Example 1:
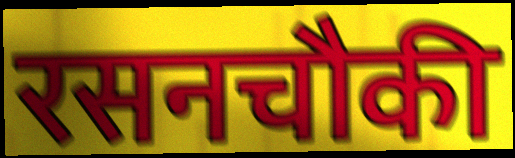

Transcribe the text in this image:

रसनचौकी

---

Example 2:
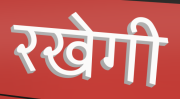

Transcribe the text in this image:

रखेगी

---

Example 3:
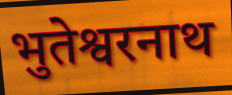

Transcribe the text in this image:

भुतेश्वरनाथ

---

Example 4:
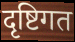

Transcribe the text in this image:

दृष्टिगत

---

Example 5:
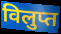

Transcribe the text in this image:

विलुप्त